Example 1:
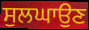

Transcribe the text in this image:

ਸੁਲਘਾਉਣ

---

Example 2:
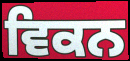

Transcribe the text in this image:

ਵਿਕਨ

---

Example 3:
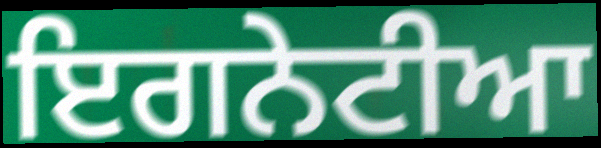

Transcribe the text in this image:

ਇਗਨੇਟੀਆ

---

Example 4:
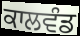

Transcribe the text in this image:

ਕਾਲਵੰਡ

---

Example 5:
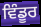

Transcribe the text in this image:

ਵਿੰਡੂਰ